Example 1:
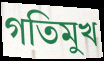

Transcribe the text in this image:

গতিমুখ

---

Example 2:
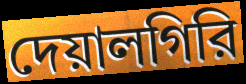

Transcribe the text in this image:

দেয়ালগিরি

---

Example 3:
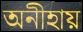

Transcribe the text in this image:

অনীহায়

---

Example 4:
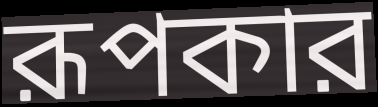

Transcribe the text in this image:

রূপকার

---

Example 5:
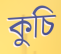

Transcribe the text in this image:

কুচি